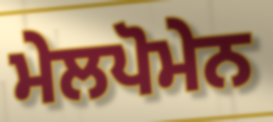
ਮੇਲਪੋਮੇਨ